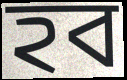
হব